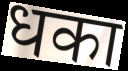
धका